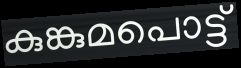
കുങ്കുമപൊട്ട്